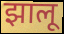
झालू